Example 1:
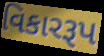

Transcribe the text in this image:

વિકારરૂપ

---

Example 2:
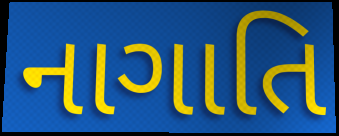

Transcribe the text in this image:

નાગાતિ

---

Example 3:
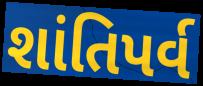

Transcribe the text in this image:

શાંતિપર્વ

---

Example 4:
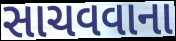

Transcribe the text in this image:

સાચવવાના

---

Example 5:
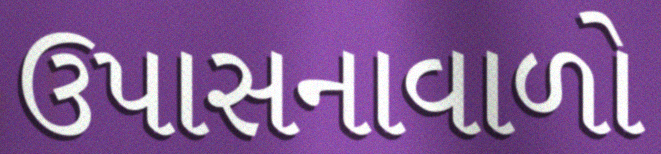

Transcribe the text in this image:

ઉપાસનાવાળો